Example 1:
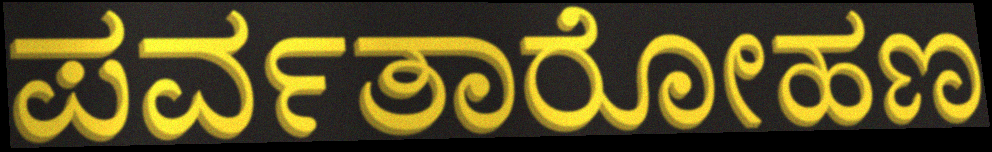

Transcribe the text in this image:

ಪರ್ವತಾರೋಹಣ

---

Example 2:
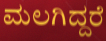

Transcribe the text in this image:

ಮಲಗಿದ್ದರೆ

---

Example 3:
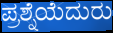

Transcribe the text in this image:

ಪ್ರಶ್ನೆಯೆದುರು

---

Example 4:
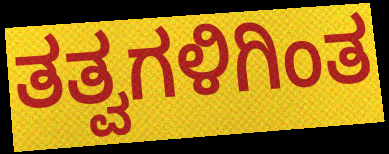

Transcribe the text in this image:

ತತ್ವಗಳಿಗಿಂತ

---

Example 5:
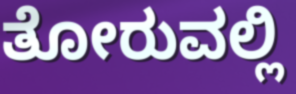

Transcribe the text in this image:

ತೋರುವಲ್ಲಿ